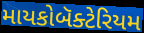
માયકોબૅક્ટેરિયમ